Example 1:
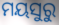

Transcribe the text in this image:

ମୟସୁରୁ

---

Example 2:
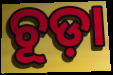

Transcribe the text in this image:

ଚୂଡ଼ା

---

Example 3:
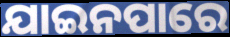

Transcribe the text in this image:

ଯାଇନପାରେ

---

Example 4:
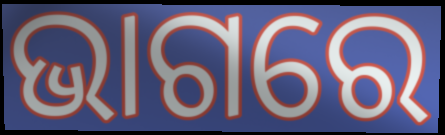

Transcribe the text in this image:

ଭାଗରେ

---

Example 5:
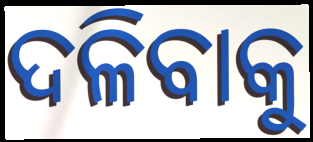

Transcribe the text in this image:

ଦଳିବାକୁ